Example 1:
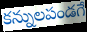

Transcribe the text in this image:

కన్నులపండగే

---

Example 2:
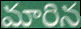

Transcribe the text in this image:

మారిన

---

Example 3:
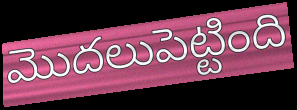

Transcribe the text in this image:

మొదలుపెట్టింది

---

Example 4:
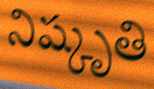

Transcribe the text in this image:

నిష్కృతి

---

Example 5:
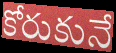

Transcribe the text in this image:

కోరుకునే